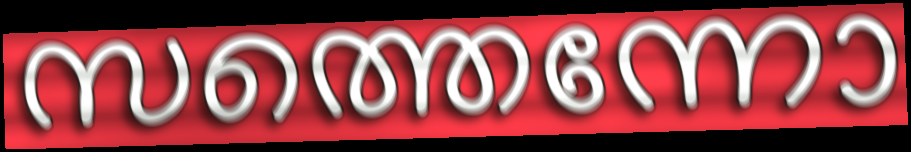
സത്തെന്നോ